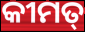
କୀମତ୍